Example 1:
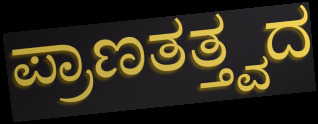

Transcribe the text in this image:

ಪ್ರಾಣತತ್ತ್ವದ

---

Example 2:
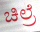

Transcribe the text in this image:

ಚಿಲ್ರೆ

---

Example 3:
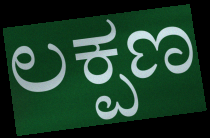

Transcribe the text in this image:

ಲಕ್ಪಣ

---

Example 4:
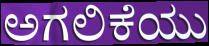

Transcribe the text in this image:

ಅಗಲಿಕೆಯು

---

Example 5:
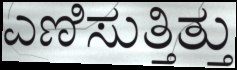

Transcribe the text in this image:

ಎಣಿಸುತ್ತಿತ್ತು